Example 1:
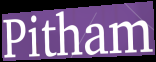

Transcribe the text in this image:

Pitham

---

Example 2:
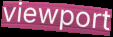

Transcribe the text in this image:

viewport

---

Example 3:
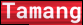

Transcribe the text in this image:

Tamang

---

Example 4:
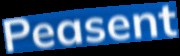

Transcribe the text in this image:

Peasent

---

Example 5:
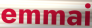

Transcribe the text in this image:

emmai